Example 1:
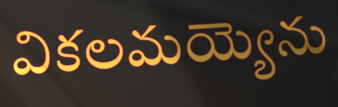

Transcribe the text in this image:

వికలమయ్యెను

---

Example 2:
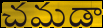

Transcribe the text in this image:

చమడా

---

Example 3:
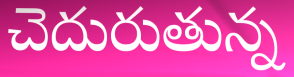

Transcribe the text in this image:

చెదురుతున్న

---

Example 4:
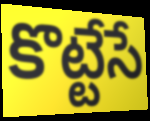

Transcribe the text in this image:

కొట్టేసే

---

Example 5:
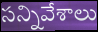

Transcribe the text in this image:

సన్నివేశాలు